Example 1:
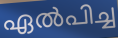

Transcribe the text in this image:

ഏൽപിച്ച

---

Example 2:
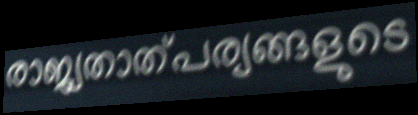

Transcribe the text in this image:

രാജ്യതാത്പര്യങ്ങളുടെ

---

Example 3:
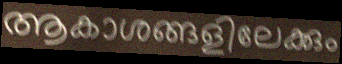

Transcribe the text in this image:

ആകാശങ്ങളിലേക്കും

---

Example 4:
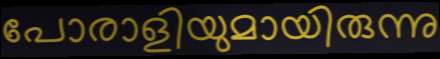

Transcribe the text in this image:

പോരാളിയുമായിരുന്നു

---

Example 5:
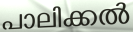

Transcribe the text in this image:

പാലിക്കൽ